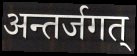
अन्तर्जगत्